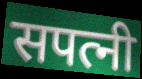
सपत्नी